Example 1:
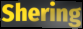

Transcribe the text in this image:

Shering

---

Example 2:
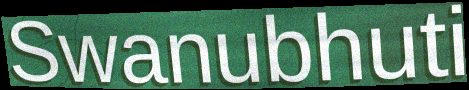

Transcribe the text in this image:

Swanubhuti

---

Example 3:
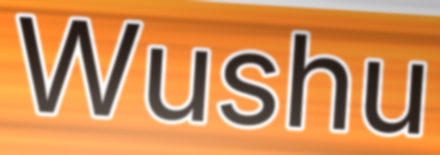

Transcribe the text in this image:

Wushu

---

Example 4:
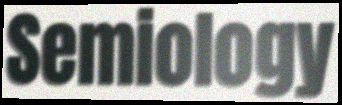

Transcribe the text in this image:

Semiology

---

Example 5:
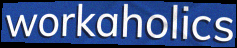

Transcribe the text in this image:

workaholics